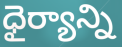
ధైర్యాన్ని